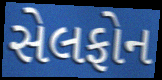
સેલફોન